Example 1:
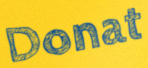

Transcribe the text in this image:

Donat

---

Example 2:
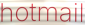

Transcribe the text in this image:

hotmail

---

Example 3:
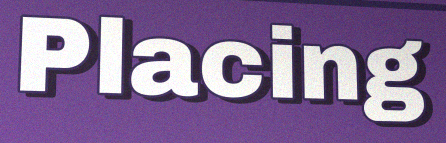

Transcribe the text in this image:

Placing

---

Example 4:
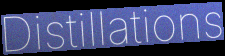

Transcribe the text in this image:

Distillations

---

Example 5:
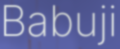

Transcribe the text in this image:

Babuji